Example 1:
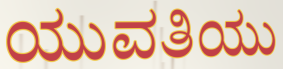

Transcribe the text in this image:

ಯುವತಿಯು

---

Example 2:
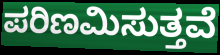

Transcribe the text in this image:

ಪರಿಣಮಿಸುತ್ತವೆ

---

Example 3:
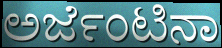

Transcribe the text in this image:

ಅರ್ಜೆಂಟಿನಾ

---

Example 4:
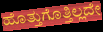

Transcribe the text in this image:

ಹೊತ್ತುಗೊತ್ತಿಲ್ಲದೇ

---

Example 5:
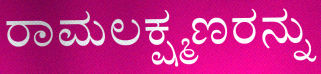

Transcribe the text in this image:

ರಾಮಲಕ್ಷ್ಮಣರನ್ನು